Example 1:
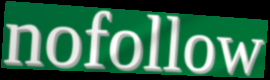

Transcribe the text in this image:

nofollow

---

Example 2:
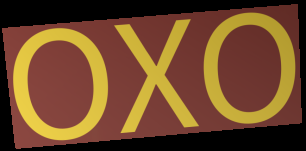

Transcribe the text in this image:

OXO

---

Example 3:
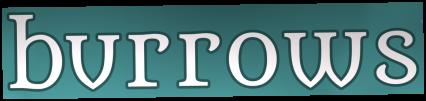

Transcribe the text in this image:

burrows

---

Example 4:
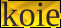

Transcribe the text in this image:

koie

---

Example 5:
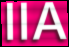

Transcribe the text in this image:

IIA